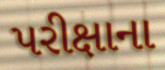
પરીક્ષાના